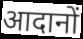
आदानों